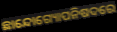
ଛାନ୍ଦୋଗ୍ୟୋପନିଷଦରେ